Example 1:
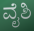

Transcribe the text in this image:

ವೈಶಿ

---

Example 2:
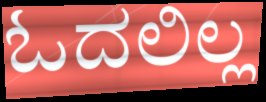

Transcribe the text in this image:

ಓದಲಿಲ್ಲ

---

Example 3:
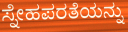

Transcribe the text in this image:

ಸ್ನೇಹಪರತೆಯನ್ನು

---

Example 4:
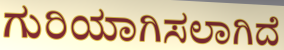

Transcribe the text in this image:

ಗುರಿಯಾಗಿಸಲಾಗಿದೆ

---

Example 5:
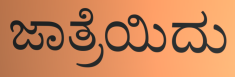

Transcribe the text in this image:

ಜಾತ್ರೆಯಿದು